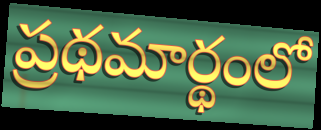
ప్రథమార్థంలో